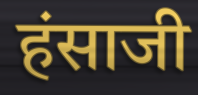
हंसाजी